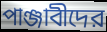
পাঞ্জাবীদের